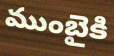
ముంబైకి